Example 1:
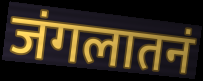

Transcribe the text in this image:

जंगलातनं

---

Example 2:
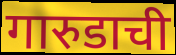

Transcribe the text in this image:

गारुडाची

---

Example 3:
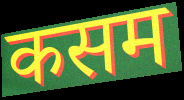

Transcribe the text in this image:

कसम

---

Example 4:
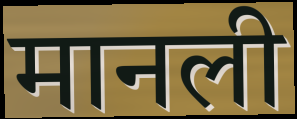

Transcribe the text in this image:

मानली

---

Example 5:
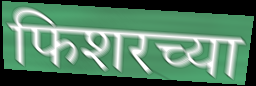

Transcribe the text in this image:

फिशरच्या